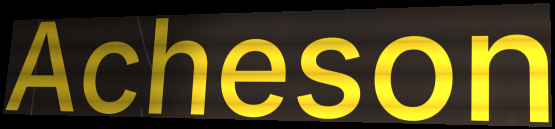
Acheson